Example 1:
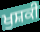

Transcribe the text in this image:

ਖੁਸ਼ਕੀ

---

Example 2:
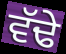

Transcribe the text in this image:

ਵੱਢੇ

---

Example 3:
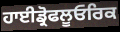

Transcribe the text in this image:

ਹਾਈਡ੍ਰੋਫਲੂਓਰਿਕ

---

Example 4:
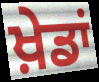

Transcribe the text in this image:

ਖ਼ੇਡਾਂ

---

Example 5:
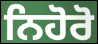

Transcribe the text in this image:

ਨਿਹੋਰੋ